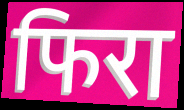
फिरा